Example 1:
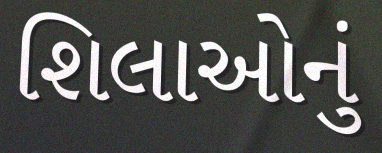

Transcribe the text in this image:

શિલાઓનું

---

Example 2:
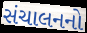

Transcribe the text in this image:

સંચાલનનો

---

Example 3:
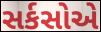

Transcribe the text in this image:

સર્કસોએ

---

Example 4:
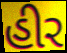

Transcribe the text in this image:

હીર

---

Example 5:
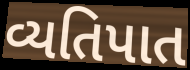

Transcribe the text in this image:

વ્યતિપાત